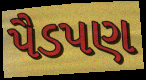
પૈડપણ